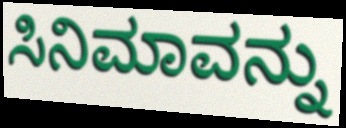
ಸಿನಿಮಾವನ್ನು